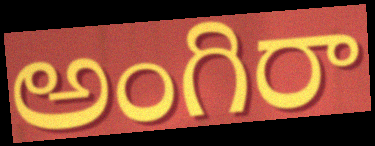
అంగిరా